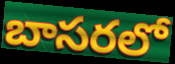
బాసరలో